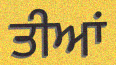
ਤੀਆਂ